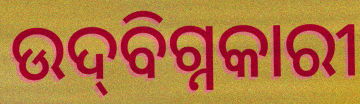
ଉଦ୍‌ବିଗ୍ନକାରୀ